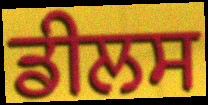
ਡੀਲਸ